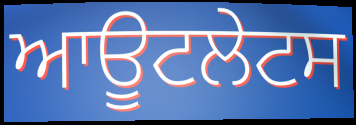
ਆਊਟਲੇਟਸ